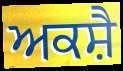
ਅਕਸ਼ੈ